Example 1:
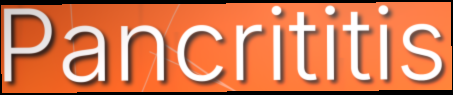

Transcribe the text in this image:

Pancrititis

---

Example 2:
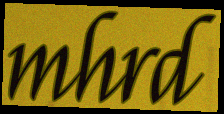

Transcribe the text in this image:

mhrd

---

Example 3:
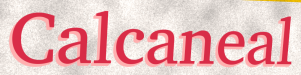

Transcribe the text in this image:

Calcaneal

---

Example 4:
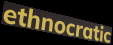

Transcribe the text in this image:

ethnocratic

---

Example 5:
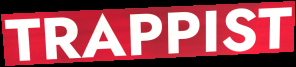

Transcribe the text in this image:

TRAPPIST